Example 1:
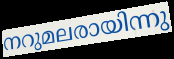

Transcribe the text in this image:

നറുമലരായിന്നു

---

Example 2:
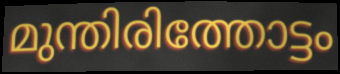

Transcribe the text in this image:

മുന്തിരിത്തോട്ടം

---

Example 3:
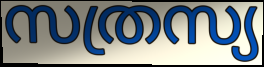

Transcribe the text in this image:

സത്രസ്യ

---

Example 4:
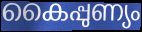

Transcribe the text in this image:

കൈപ്പുണ്യം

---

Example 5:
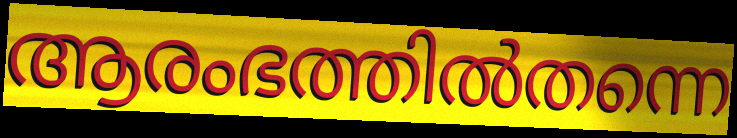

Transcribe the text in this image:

ആരംഭത്തിൽതന്നെ